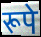
रूपे